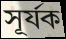
সূৰ্যক